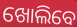
ଖୋଲିବେ